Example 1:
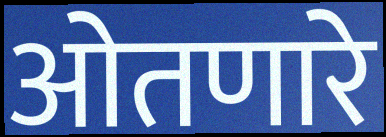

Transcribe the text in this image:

ओतणारे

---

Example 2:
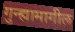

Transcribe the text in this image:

गुन्ह्यामागील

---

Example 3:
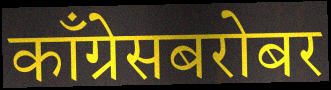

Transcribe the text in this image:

काँग्रेसबरोबर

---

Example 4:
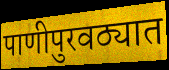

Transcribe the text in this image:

पाणीपुरवठ्यात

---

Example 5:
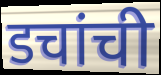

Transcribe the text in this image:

डचांची